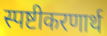
स्पष्टीकरणार्थ